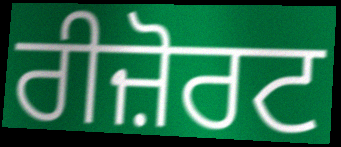
ਰੀਜ਼ੋਰਟ